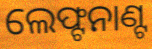
ଲେଫ୍ଟନାଣ୍ଟ